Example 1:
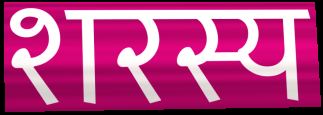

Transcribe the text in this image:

शरस्य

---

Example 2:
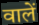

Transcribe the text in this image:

वालें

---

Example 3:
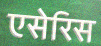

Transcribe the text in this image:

एसेरिस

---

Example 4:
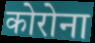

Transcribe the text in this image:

कोरोना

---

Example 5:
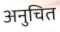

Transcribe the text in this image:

अनुचित